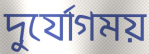
দুর্যোগময়